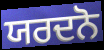
ਯਰਦਨੋ